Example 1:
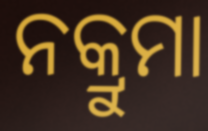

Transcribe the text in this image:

ନକ୍ରୁମା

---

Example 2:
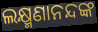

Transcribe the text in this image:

ଲକ୍ଷ୍ମଣାନନ୍ଦଙ୍କ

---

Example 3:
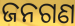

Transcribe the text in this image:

ଜନଗଣ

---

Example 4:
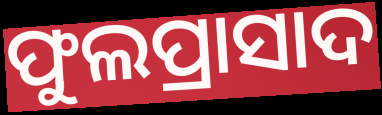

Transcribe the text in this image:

ଫୁଲପ୍ରାସାଦ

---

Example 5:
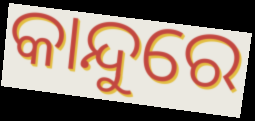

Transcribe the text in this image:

କାନ୍ଦୁରେ